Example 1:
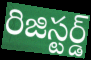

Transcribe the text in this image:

రిజిస్టర్డ్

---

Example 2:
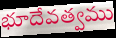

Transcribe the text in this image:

భూదేవత్వము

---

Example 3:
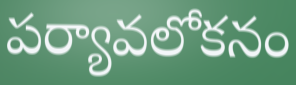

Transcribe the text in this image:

పర్యావలోకనం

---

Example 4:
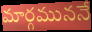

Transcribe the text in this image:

మార్గముననే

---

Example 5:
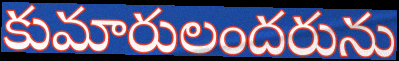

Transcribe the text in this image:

కుమారులందరును